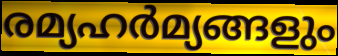
രമ്യഹർമ്യങ്ങളും